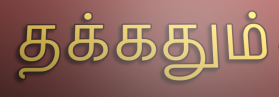
தக்கதும்